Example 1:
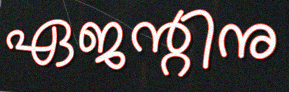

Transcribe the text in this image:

ഏജന്റിനു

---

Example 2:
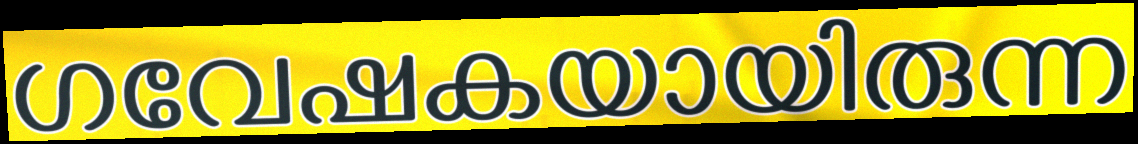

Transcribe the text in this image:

ഗവേഷകയായിരുന്ന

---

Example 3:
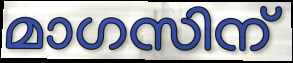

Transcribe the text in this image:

മാഗസിന്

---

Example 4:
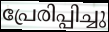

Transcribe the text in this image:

പ്രേരിപ്പിച്ചു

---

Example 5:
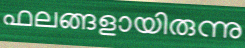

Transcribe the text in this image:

ഫലങ്ങളായിരുന്നു